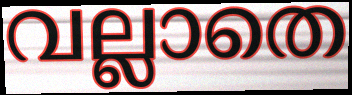
വല്ലാതെ